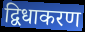
द्विधाकरण